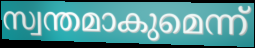
സ്വന്തമാകുമെന്ന്